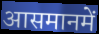
आसमानमें